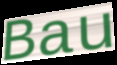
Bau